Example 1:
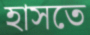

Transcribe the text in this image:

হাসতে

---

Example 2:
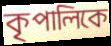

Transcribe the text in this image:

কৃপালিকে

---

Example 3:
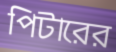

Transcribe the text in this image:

পিটারের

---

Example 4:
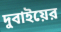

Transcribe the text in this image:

দুবাইয়ের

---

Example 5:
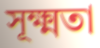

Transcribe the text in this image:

সূক্ষ্মতা